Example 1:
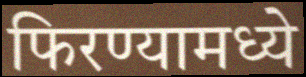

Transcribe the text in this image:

फिरण्यामध्ये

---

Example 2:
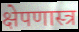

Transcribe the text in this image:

क्षेपणास्त्र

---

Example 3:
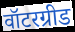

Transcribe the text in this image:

वॉटरग्रीड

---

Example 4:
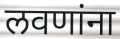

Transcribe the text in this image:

लवणांना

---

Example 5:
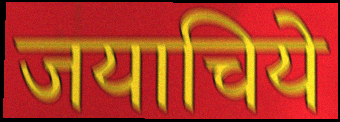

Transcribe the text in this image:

जयाचिये